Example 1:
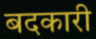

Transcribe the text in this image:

बदकारी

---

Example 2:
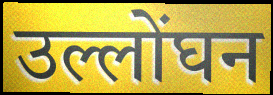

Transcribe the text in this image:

उल्लोंघन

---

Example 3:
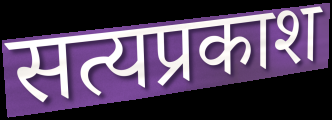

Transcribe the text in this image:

सत्यप्रकाश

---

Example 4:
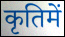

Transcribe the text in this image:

कृतिमें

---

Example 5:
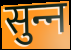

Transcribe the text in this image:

सुन्‍न